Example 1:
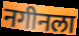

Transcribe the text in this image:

नगीनला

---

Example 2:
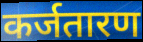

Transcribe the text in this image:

कर्जतारण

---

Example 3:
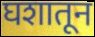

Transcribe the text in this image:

घशातून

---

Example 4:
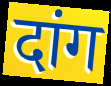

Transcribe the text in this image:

दांग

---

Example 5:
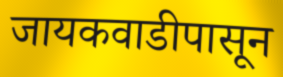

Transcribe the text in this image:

जायकवाडीपासून